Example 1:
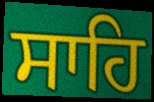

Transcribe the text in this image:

ਸਾਹਿ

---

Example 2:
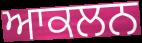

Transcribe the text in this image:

ਆਕਲਨ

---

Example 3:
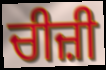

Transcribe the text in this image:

ਚੀਜ਼ੀ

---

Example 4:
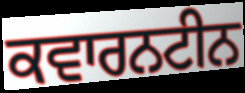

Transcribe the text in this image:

ਕਵਾਰਨਟੀਨ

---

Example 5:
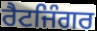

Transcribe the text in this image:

ਰੈਟਜਿੰਗਰ